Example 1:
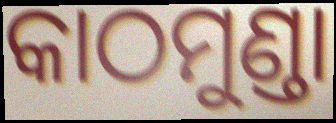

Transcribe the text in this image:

କାଠମୁଣ୍ଡା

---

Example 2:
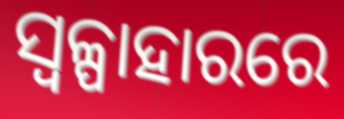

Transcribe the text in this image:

ସ୍ୱଳ୍ପାହାରରେ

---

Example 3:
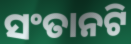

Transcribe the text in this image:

ସଂତାନଟି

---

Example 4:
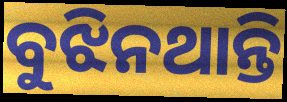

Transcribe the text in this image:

ବୁଝିନଥାନ୍ତି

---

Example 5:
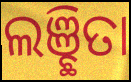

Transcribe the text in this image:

ଲଞ୍ଛିତା